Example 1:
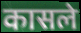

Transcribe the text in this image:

कासले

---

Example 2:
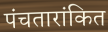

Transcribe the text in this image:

पंचतारांकित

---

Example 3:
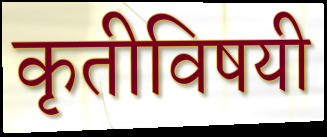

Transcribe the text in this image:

कृतीविषयी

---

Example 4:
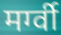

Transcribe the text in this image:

मर्ग्वी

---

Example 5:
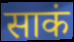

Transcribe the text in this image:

साकं